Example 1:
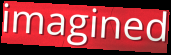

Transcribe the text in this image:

imagined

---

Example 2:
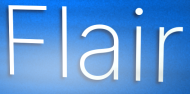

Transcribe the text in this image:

Flair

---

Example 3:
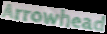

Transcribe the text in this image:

Arrowhead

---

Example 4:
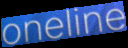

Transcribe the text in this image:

oneline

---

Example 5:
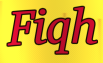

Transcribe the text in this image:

Fiqh